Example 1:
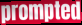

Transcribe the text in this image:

prompted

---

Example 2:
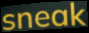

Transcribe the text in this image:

sneak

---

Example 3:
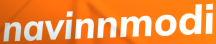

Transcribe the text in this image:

navinnmodi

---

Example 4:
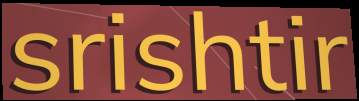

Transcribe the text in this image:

srishtir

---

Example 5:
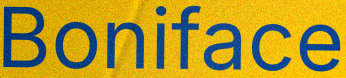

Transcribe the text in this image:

Boniface